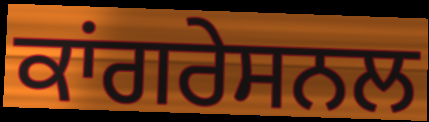
ਕਾਂਗਰੇਸਨਲ